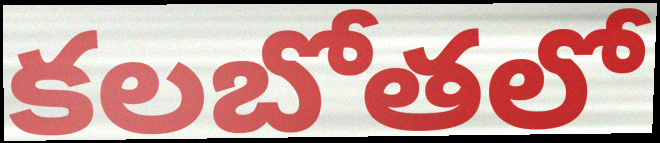
కలబోతలో